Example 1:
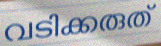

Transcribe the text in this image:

വടിക്കരുത്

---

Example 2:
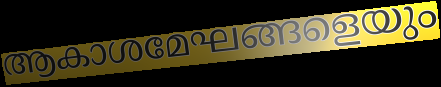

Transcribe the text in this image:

ആകാശമേഘങ്ങളെയും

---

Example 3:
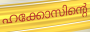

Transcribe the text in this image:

ഹക്കോസിന്റെ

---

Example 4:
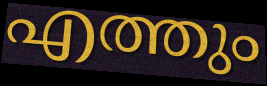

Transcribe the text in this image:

എത്തും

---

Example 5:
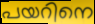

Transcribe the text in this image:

പയറിനെ